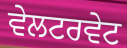
ਵੇਲਟਰਵੇਟ